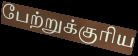
பேற்றுக்குரிய